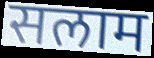
सलाम